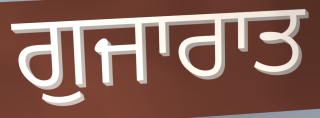
ਗੁਜਾਰਾਤ